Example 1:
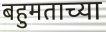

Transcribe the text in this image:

बहुमताच्या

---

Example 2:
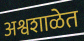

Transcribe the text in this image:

अश्वशाळेत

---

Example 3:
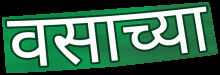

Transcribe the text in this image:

वसाच्या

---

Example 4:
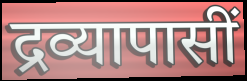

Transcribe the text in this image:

द्रव्यापासीं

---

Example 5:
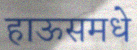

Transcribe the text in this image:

हाऊसमधे